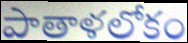
పాతాళలోకం